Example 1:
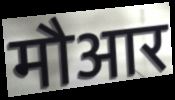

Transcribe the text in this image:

मौआर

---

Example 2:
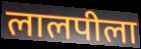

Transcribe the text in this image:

लालपीला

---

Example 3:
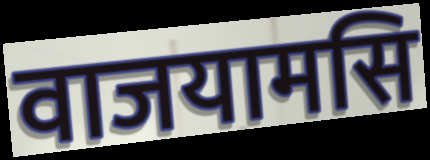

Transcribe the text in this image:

वाजयामसि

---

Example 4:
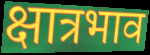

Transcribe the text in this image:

क्षात्रभाव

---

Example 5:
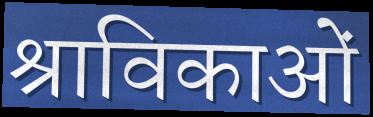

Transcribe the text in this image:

श्राविकाओं